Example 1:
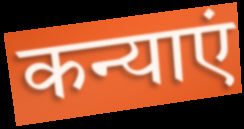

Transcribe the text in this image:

कन्याएं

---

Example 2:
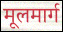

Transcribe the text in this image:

मूलमार्ग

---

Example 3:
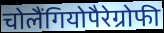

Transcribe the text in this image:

चोलैंगियोपैरेग्रोफी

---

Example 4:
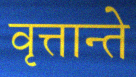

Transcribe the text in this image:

वृत्तान्ते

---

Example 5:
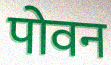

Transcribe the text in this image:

पोवन